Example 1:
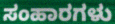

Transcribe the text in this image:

ಸಂಹಾರಗಳು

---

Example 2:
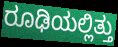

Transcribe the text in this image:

ರೂಢಿಯಲ್ಲಿತ್ತು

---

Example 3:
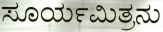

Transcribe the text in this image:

ಸೂರ್ಯಮಿತ್ರನು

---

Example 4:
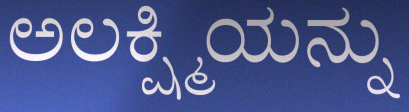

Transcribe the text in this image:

ಅಲಕ್ಷ್ಮಿಯನ್ನು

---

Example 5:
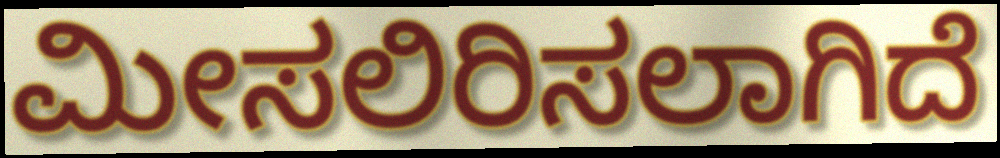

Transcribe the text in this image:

ಮೀಸಲಿರಿಸಲಾಗಿದೆ